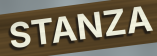
STANZA